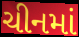
ચીનમાં